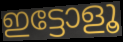
ഇട്ടോളൂ